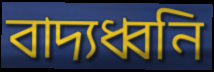
বাদ্যধ্বনি